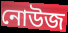
নোউজ